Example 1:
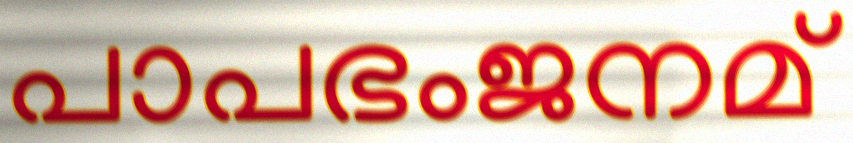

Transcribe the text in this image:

പാപഭംജനമ്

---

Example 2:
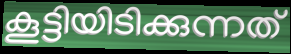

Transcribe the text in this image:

കൂട്ടിയിടിക്കുന്നത്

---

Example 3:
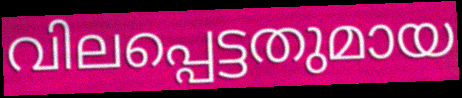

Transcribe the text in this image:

വിലപ്പെട്ടതുമായ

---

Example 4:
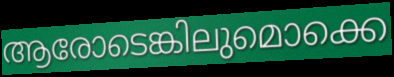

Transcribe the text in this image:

ആരോടെങ്കിലുമൊക്കെ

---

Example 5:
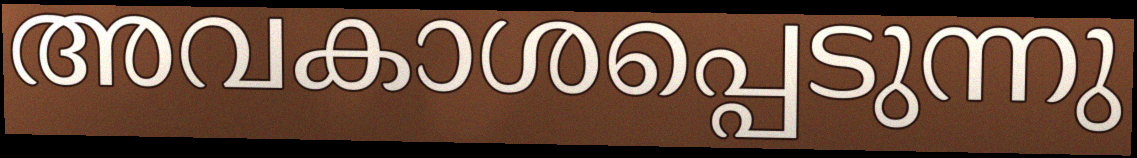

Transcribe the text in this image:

അവകാശപ്പെടുന്നു